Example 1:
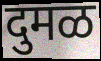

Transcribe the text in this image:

दुमळ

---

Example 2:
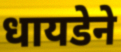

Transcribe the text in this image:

धायडेने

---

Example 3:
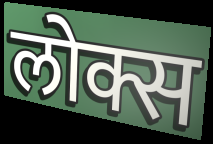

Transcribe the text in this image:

लोक्स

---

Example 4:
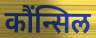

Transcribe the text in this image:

कौंन्सिल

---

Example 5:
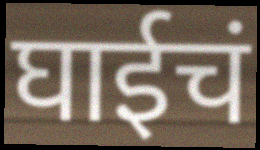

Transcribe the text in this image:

घाईचं